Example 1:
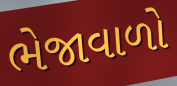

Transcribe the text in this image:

ભેજાવાળો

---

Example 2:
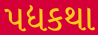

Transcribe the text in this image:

પદ્યકથા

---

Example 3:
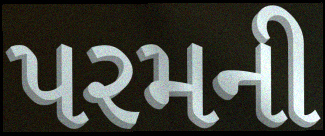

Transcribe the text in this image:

પરમની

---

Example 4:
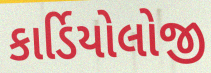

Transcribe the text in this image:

કાર્ડિયોલોજી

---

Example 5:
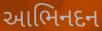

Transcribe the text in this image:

આભિનદન